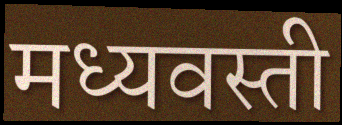
मध्यवस्ती